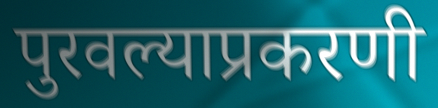
पुरवल्याप्रकरणी